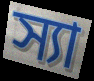
স্যা